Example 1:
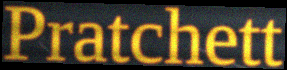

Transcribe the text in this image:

Pratchett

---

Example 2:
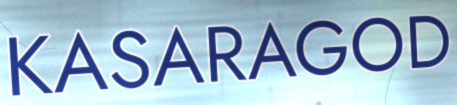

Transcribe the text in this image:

KASARAGOD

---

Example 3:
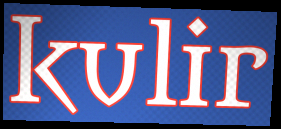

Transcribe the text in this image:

kulir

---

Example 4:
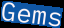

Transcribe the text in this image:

Gems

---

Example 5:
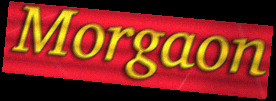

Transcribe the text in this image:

Morgaon